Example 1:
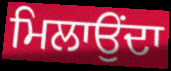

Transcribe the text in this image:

ਮਿਲਾਉਂਦਾ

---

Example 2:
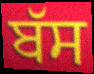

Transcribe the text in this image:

ਬੱਸ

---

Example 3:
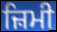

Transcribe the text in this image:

ਜ਼ਿਮੀ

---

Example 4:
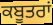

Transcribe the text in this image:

ਕਬੂਤਰਾਂ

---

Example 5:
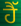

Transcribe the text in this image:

ਹੈੱ